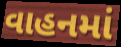
વાહનમાં